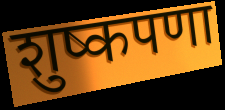
शुष्कपणा